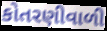
કોતરણીવાળી